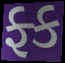
ફ્ક